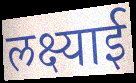
लक्ष्याई